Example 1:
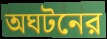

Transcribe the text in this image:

অঘটনের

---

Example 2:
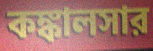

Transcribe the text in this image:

কঙ্কালসার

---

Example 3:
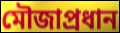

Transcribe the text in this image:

মৌজাপ্রধান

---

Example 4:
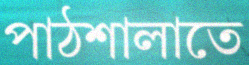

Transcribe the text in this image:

পাঠশালাতে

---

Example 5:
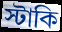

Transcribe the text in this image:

স্টাকি